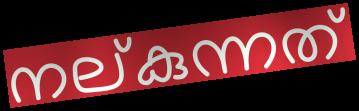
നല്കുന്നത്